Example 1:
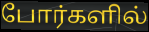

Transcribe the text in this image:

போர்களில்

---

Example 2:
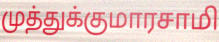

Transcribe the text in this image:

முத்துக்குமாரசாமி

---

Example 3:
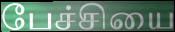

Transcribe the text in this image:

பேச்சியை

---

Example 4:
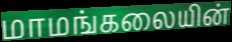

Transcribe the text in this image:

மாமங்கலையின்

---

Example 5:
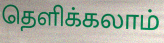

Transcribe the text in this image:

தெளிக்கலாம்